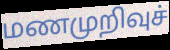
மணமுறிவுச்